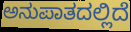
ಅನುಪಾತದಲ್ಲಿದೆ